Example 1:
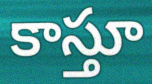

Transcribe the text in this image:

కాస్తూ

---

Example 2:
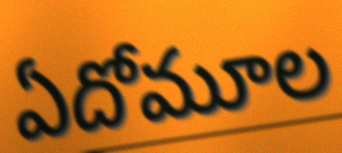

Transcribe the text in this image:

ఏదోమూల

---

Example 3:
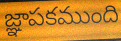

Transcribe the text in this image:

జ్ఞాపకముంది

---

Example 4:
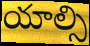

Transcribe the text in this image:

యాల్సి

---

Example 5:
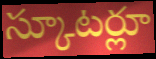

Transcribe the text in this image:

స్కూటర్లూ